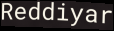
Reddiyar